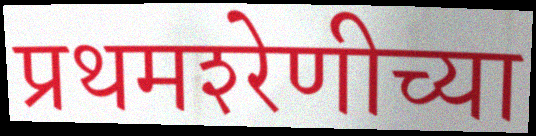
प्रथमश्रेणीच्या